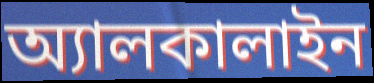
অ্যালকালাইন